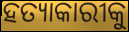
ହତ୍ୟାକାରୀକୁ